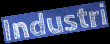
Industri